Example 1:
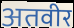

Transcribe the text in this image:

अतवीर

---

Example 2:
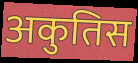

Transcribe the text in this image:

अकुतिस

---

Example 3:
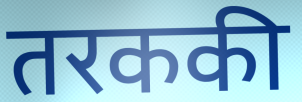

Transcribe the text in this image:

तरककी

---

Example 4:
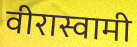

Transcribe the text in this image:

वीरास्वामी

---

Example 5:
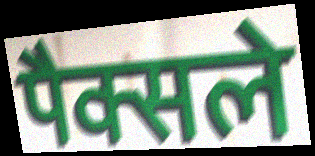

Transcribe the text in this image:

पैक्सले